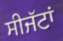
ਸੀਜੱਟਾਂ